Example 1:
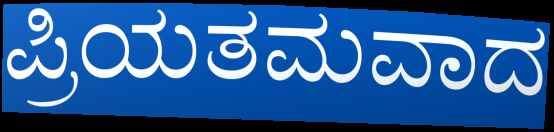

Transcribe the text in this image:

ಪ್ರಿಯತಮವಾದ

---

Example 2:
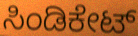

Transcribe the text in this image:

ಸಿಂಡಿಕೇಟ್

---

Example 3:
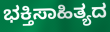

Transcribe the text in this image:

ಭಕ್ತಿಸಾಹಿತ್ಯದ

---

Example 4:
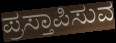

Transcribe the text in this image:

ಪ್ರಸ್ತಾಪಿಸುವ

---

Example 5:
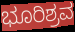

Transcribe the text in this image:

ಭೂರಿಶ್ರವ